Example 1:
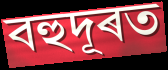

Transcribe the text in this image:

বহুদূৰত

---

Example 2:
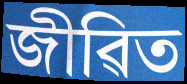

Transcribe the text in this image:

জীৱিত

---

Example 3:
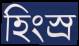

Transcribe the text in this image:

হিংস্ৰ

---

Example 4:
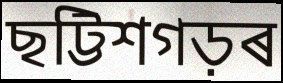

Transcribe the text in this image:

ছট্টিশগড়ৰ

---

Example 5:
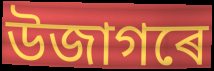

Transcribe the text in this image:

উজাগৰে